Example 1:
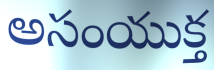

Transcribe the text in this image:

అసంయుక్త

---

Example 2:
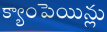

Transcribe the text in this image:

క్యాంపెయిన్లు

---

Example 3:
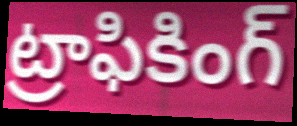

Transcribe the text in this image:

ట్రాఫికింగ్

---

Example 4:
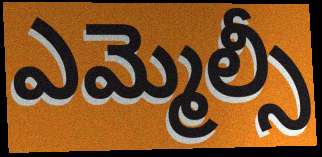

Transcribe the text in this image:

ఎమ్మెల్సీ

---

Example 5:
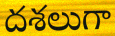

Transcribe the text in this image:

దశలుగా